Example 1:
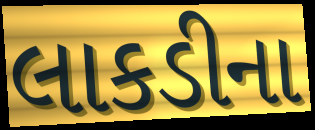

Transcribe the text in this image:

લાકડીના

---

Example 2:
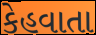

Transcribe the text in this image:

કેહવાતા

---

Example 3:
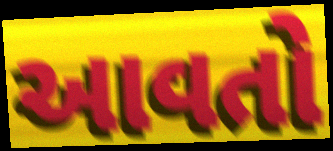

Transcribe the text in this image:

આવતો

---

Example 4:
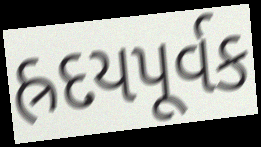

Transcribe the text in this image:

હ્રદયપૂર્વક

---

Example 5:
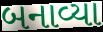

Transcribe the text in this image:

બનાવ્યા